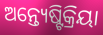
ଅନ୍ତ୍ୟେଷ୍ଟିକ୍ରିୟା